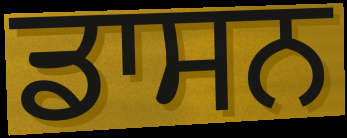
ਡਾਸਨ